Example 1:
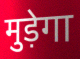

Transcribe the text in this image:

मुड़ेगा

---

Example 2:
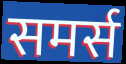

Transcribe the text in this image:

समर्स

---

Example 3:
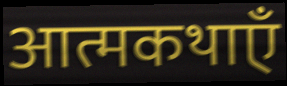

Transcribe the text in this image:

आत्मकथाएँ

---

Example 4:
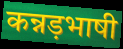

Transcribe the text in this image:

कन्नड़भाषी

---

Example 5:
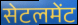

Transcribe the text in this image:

सेटलमेंट